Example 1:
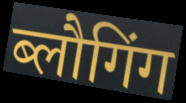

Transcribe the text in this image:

ब्लौगिंग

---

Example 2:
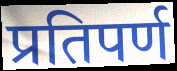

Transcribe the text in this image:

प्रतिपर्ण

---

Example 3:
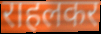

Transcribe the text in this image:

राहलकर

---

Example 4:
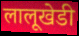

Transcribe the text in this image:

लालूखेडी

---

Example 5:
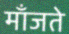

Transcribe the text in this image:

माँजते